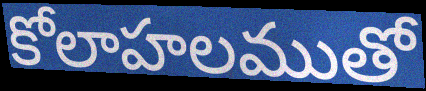
కోలాహలముతో